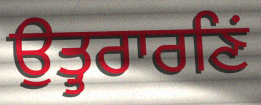
ਉਤ੍ਤਰਾਰਣਿਂ